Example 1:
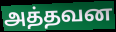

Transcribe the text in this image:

அத்தவன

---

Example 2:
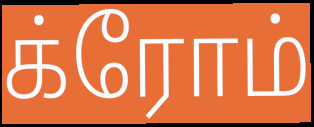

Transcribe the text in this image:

க்ரோம்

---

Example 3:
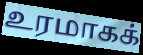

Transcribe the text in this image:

உரமாகக்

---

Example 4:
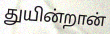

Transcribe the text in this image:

துயின்றான்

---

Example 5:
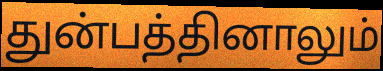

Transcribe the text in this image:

துன்பத்தினாலும்